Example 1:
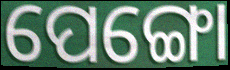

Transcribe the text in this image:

ପେଙ୍ଗୋ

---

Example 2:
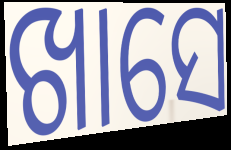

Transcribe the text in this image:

ଖାସେ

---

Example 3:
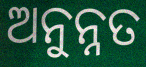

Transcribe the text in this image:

ଅନୁନ୍ନତ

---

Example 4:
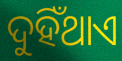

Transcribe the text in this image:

ଦୁହିଁଥାଏ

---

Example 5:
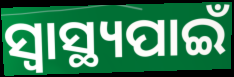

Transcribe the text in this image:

ସ୍ବାସ୍ଥ୍ୟପାଇଁ